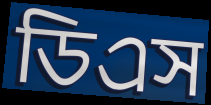
ডিএস